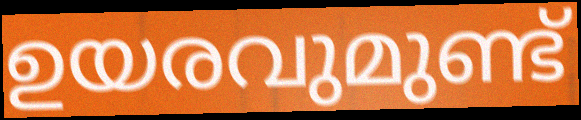
ഉയരവുമുണ്ട്